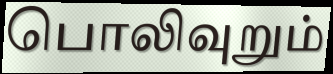
பொலிவுறும்